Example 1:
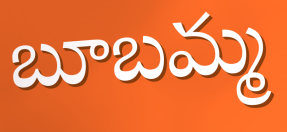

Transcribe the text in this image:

బూబమ్మ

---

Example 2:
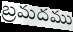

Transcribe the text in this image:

బ్రమదము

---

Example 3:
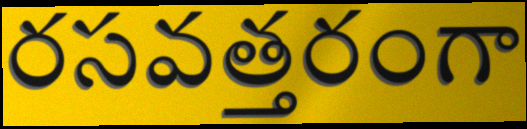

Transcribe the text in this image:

రసవత్తరంగా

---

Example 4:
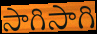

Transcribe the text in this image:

సాగిసాగి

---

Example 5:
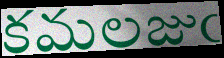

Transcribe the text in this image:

కమలజుఁ